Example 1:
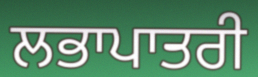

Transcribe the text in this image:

ਲਭਾਪਾਤਰੀ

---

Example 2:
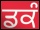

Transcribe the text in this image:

ਡਕੰ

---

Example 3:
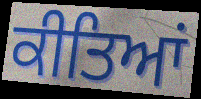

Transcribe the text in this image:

ਕੀਤਿਆਂ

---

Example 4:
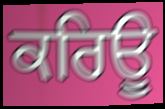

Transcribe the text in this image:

ਕਰਿਊ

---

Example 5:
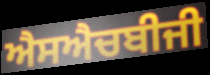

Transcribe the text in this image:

ਐਸਐਚਬੀਜੀ